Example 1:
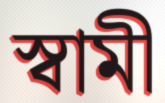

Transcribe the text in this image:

স্বামী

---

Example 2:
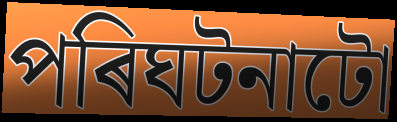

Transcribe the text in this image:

পৰিঘটনাটো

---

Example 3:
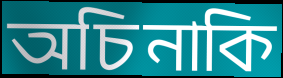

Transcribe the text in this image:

অচিনাকি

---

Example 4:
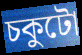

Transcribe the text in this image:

চকুটো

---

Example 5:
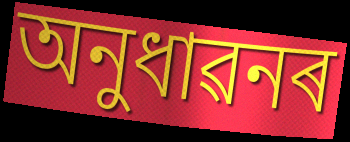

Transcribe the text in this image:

অনুধাৱনৰ